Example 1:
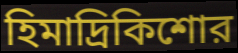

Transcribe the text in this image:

হিমাদ্রিকিশোর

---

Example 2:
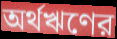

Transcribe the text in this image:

অর্থঋণের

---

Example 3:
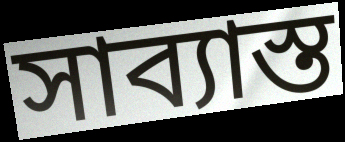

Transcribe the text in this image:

সাব্যাস্ত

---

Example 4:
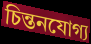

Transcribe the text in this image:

চিন্তনযোগ্য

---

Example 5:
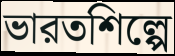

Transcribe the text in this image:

ভারতশিল্পে